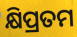
କ୍ଷିପ୍ରତମ